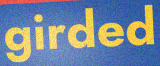
girded